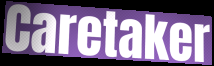
Caretaker